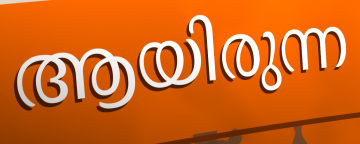
ആയിരുന്ന